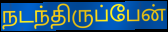
நடந்திருப்பேன்